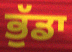
ਭੁੱਡਾ